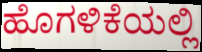
ಹೊಗಳಿಕೆಯಲ್ಲಿ